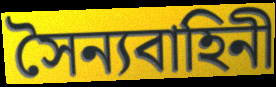
সৈন্যবাহিনী